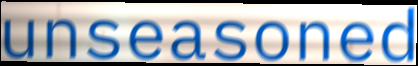
unseasoned